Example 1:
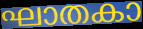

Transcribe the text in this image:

ഘാതകാ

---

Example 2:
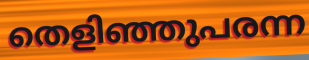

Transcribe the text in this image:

തെളിഞ്ഞുപരന്ന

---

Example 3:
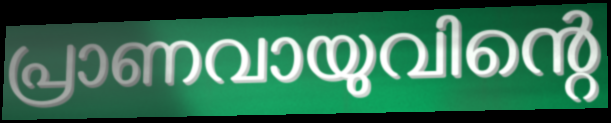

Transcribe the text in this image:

പ്രാണവായുവിന്റെ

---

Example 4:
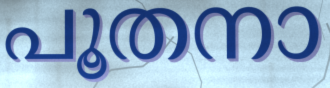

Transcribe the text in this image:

പൂതനാ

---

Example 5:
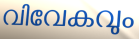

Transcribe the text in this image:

വിവേകവും